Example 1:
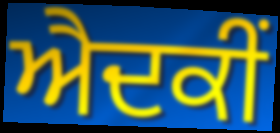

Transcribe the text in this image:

ਐਦਕੀਂ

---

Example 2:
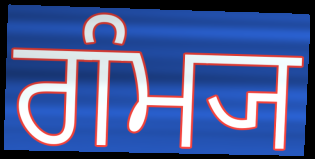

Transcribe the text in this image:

ਗੰਮ੍ਯ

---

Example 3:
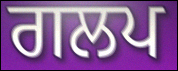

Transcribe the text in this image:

ਗਲਪ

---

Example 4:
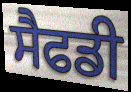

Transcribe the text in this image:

ਸੈਫਡੀ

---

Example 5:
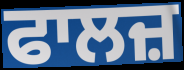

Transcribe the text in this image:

ਫਾਲਜ਼